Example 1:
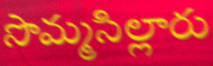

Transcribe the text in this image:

సొమ్మసిల్లారు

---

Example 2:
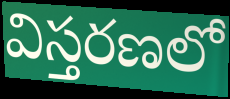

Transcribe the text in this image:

విస్తరణలో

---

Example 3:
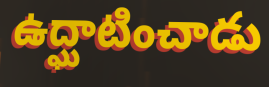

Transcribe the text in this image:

ఉద్ఘాటించాడు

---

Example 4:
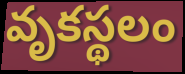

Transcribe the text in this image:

వృకస్థలం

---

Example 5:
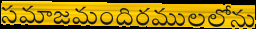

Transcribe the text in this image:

సమాజమందిరములలోను